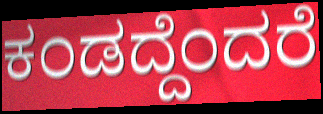
ಕಂಡದ್ದೆಂದರೆ